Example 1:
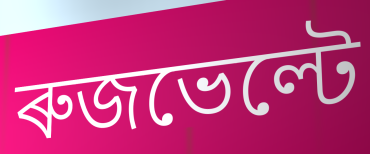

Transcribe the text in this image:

ৰুজভেল্টে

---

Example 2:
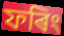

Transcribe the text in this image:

ফৰিং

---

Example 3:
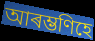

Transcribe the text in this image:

আৰম্ভণিহে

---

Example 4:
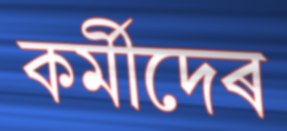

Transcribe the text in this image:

কৰ্মীদেৰ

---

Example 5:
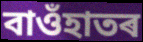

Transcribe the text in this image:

বাওঁহাতৰ